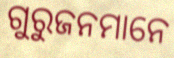
ଗୁରୁଜନମାନେ